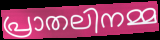
പ്രാതലിനമ്മ